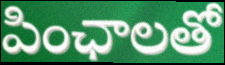
పింఛాలతో